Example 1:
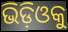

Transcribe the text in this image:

ଭିଡ଼ିଓକୁ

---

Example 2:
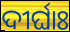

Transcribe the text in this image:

ଦୀର୍ଘାଃ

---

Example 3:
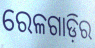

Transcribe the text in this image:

ରେଳଗାଡ଼ିର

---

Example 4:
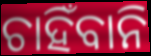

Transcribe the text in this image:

ଚାହିଁବାନି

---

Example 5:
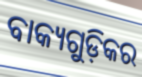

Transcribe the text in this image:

ବାକ୍ୟଗୁଡ଼ିକର